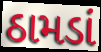
ઠામડાં